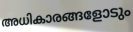
അധികാരങ്ങളോടും